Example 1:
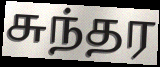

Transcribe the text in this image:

சுந்தர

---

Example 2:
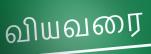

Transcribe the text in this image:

வியவரை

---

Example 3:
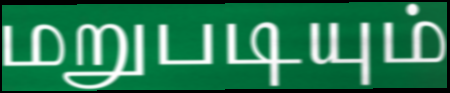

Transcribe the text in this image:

மறுபடியும்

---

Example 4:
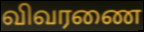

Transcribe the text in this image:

விவரணை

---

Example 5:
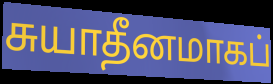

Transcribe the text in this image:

சுயாதீனமாகப்